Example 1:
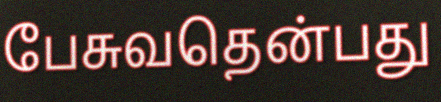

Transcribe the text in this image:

பேசுவதென்பது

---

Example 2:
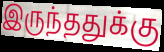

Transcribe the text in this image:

இருந்ததுக்கு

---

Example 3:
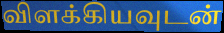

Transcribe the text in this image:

விளக்கியவுடன்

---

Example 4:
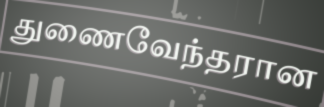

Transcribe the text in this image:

துணைவேந்தரான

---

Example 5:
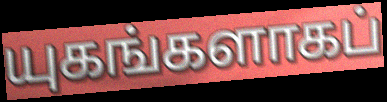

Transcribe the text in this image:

யுகங்களாகப்